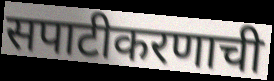
सपाटीकरणाची